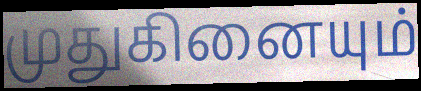
முதுகினையும்